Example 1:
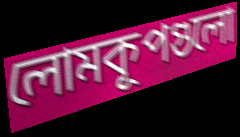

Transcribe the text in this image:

লোমকূপগুলো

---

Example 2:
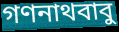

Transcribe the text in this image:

গণনাথবাবু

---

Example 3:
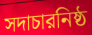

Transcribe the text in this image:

সদাচারনিষ্ঠ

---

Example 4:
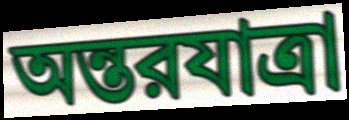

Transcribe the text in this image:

অন্তরযাত্রা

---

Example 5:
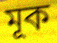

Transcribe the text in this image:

মূক